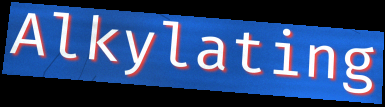
Alkylating